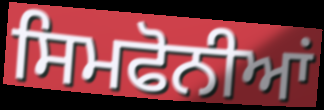
ਸਿਮਫੋਨੀਆਂ